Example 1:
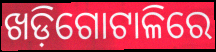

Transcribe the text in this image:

ଖଡ଼ିଗୋଟାଳିରେ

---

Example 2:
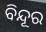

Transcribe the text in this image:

ବିନ୍ଦୂର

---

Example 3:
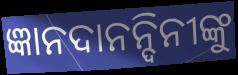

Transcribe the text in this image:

ଜ୍ଞାନଦାନନ୍ଦିନୀଙ୍କୁ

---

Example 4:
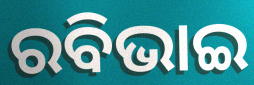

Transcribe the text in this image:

ରବିଭାଇ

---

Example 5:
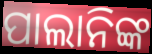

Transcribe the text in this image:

ପାଲାନିଙ୍କ